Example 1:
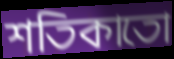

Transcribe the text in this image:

শতিকাতো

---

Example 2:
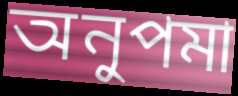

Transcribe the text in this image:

অনুপমা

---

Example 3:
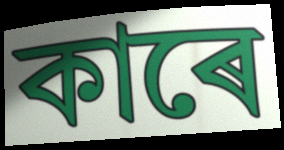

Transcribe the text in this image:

কাৰে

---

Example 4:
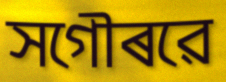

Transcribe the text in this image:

সগৌৰৱে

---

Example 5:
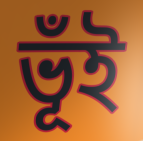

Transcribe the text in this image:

ভূঁই